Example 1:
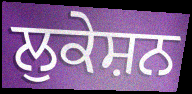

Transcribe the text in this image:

ਲੁਕੇਸ਼ਨ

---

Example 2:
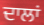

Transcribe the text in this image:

ਦਾਲਾਂ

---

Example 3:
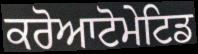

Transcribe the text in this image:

ਕਰੋਆਟੋਮੇਟਿਡ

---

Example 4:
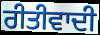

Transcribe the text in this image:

ਰੀਤੀਵਾਦੀ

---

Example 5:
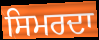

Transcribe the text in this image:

ਸਿਮਰਦਾ